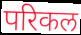
परिकल